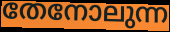
തേനോലുന്ന